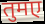
तुमए